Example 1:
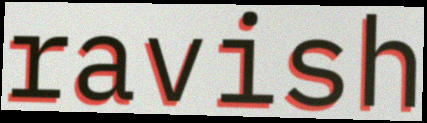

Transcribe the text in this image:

ravish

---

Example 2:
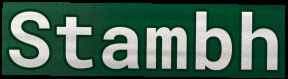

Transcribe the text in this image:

Stambh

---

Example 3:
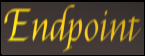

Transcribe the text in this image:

Endpoint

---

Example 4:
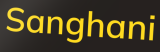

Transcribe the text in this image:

Sanghani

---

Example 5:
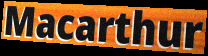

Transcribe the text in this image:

Macarthur